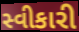
સ્વીકારી